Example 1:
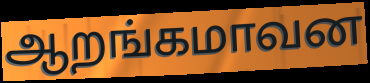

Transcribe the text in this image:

ஆறங்கமாவன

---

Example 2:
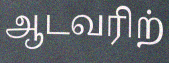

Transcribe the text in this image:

ஆடவரிற்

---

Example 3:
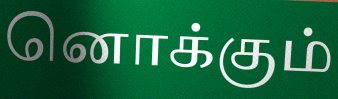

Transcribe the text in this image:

னொக்கும்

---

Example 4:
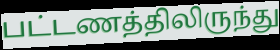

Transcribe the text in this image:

பட்டணத்திலிருந்து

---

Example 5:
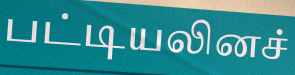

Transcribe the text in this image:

பட்டியலினச்